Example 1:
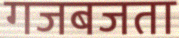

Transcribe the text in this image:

गजबजता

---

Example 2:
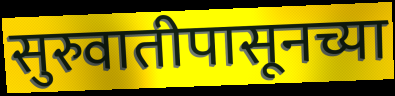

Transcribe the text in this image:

सुरुवातीपासूनच्या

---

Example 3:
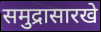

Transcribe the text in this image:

समुद्रासारखे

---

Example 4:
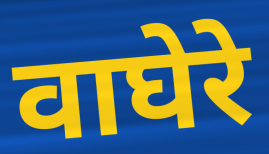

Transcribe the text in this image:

वाघेरे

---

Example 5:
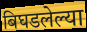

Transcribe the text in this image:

बिघडलेल्या